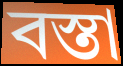
বস্তা